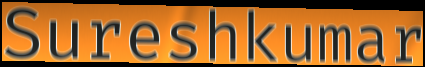
Sureshkumar